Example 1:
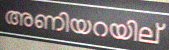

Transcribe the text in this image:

അണിയറയില്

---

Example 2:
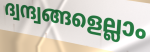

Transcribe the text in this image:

ദ്വന്ദ്വങ്ങളെല്ലാം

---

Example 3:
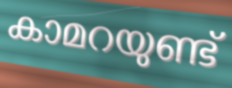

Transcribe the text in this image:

കാമറയുണ്ട്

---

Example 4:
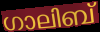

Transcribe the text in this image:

ഗാലിബ്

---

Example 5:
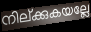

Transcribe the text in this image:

നില്ക്കുകയല്ലേ